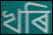
খৰি